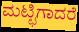
ಮಟ್ಟಿಗಾದರೆ